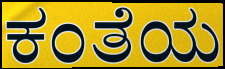
ಕಂತೆಯ